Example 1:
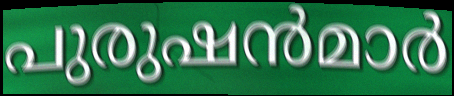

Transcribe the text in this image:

പുരുഷൻമാർ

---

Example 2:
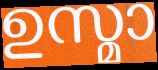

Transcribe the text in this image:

ഉസ്മാ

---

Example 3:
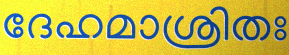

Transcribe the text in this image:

ദേഹമാശ്രിതഃ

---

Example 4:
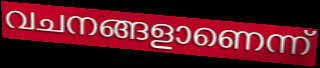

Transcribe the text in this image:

വചനങ്ങളാണെന്ന്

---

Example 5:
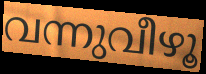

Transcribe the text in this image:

വന്നുവീഴൂ